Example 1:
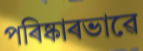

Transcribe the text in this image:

পৰিষ্কাৰভাৱে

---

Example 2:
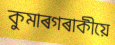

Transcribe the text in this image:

কুমাৰগৰাকীয়ে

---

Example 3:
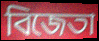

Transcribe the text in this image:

বিজেতা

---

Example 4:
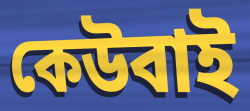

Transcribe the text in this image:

কেউবাই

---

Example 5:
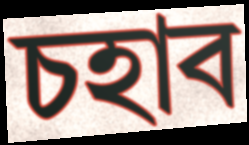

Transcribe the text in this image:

চহাব